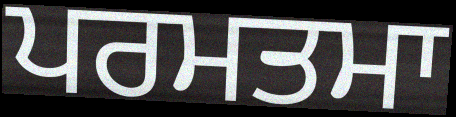
ਪਰਮਤਮਾ